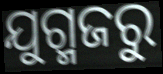
ଯୁଗ୍ମଜରୁ